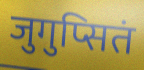
जुगुप्सितं